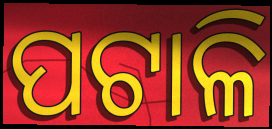
ପଟାଳି